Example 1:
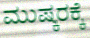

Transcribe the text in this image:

ಮುಷ್ಕರಕ್ಕೆ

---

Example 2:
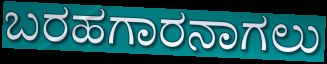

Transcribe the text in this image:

ಬರಹಗಾರನಾಗಲು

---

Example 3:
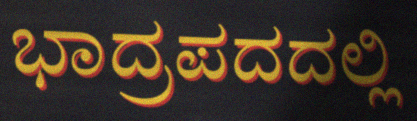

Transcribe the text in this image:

ಭಾದ್ರಪದದಲ್ಲಿ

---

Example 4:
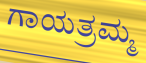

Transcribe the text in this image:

ಗಾಯತ್ರಮ್ಮ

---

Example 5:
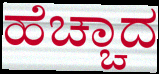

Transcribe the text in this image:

ಹೆಚ್ಚಾದ